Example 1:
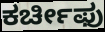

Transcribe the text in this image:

ಕರ್ಚೀಫು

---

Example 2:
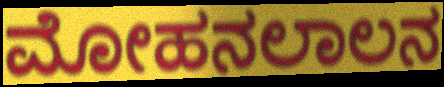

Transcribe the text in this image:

ಮೋಹನಲಾಲನ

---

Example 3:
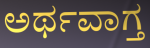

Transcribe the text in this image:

ಅರ್ಥವಾಗ್ತ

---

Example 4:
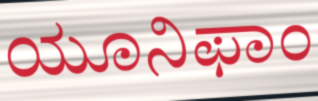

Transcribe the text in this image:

ಯೂನಿಫಾಂ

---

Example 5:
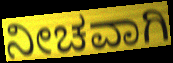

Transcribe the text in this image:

ನೀಚವಾಗಿ